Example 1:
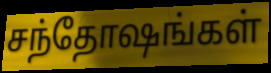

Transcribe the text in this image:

சந்தோஷங்கள்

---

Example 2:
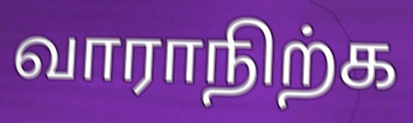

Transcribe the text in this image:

வாராநிற்க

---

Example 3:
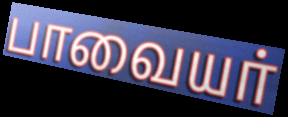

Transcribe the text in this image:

பாவையர்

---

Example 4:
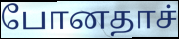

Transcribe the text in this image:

போனதாச்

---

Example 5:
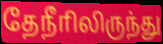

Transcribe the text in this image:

தேநீரிலிருந்து